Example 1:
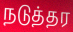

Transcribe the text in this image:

நடுத்தர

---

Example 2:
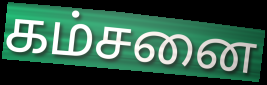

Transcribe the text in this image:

கம்சனை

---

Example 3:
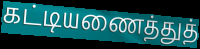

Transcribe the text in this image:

கட்டியணைத்துத்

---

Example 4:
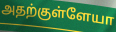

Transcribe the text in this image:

அதற்குள்ளேயா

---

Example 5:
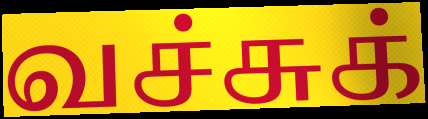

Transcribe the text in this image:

வச்சுக்